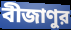
বীজাণুর